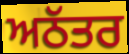
ਅਠੱਤਰ